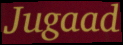
Jugaad